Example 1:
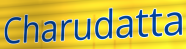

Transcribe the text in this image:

Charudatta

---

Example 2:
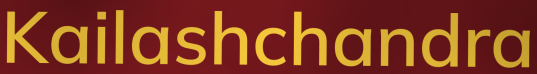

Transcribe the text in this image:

Kailashchandra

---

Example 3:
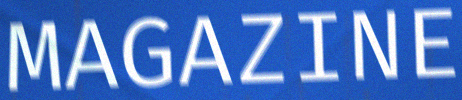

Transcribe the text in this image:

MAGAZINE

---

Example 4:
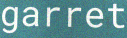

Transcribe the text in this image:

garret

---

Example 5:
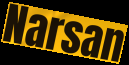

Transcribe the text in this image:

Narsan